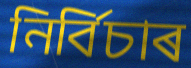
নিৰ্বিচাৰ